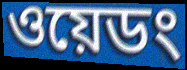
ওয়েডং